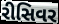
રીસિવર